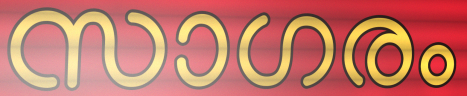
സാഗരം